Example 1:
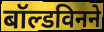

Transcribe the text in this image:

बॉल्डविनने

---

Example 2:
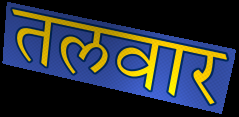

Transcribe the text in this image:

तलवार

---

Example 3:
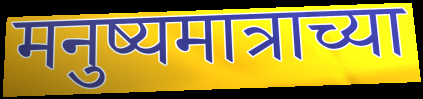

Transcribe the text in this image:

मनुष्यमात्राच्या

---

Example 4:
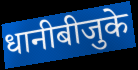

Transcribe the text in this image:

धानीबीजुके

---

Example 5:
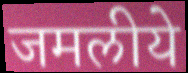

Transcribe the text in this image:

जमलीये